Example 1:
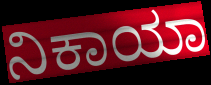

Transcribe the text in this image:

ನಿಕಾಯಾ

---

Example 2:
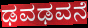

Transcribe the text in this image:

ಢವಢವನೆ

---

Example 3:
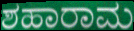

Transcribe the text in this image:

ಶಹಾರಾಮ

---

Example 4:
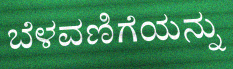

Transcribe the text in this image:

ಬೆಳವಣಿಗೆಯನ್ನು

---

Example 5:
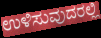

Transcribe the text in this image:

ಉಳಿಸುವುದರಲ್ಲಿ